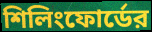
শিলিংফোর্ডের